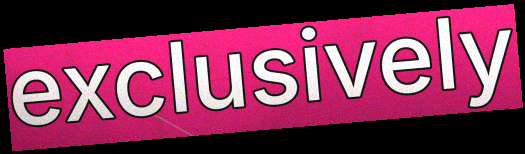
exclusively